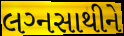
લગ્‍નસાથીને